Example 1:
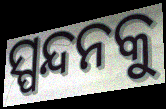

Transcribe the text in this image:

ସ୍ପନ୍ଦନକୁ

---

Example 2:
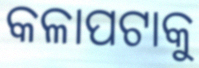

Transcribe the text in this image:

କଳାପଟାକୁ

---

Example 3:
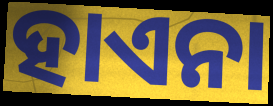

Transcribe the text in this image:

ହାଏନା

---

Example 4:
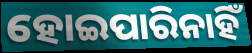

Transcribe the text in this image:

ହୋଇପାରିନାହିଁ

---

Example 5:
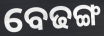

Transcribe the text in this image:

ବେଢଙ୍ଗ